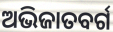
ଅଭିଜାତବର୍ଗ